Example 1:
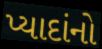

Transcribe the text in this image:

પ્યાદાંનો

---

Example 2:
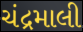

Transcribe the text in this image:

ચંદ્રમાલી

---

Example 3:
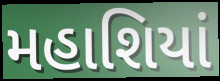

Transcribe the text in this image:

મહાશિયાં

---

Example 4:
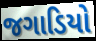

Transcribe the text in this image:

જગાડિયો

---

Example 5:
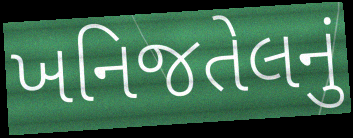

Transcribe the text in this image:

ખનિજતેલનું